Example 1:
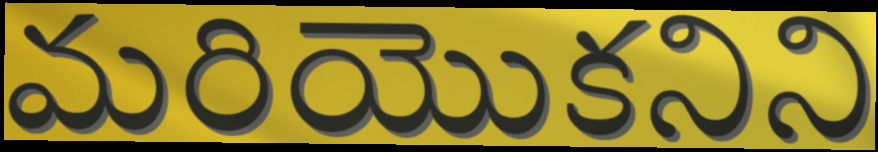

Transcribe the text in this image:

మరియొకనిని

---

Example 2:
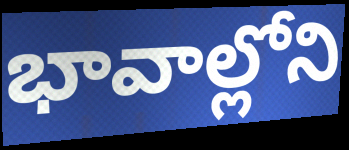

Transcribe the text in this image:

భావాల్లోని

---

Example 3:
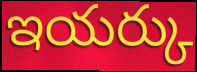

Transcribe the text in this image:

ఇయర్కు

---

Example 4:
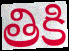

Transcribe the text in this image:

తికి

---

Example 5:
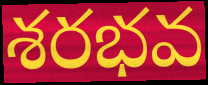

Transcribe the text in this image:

శరభవ